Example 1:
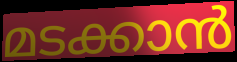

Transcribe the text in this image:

മടക്കാൻ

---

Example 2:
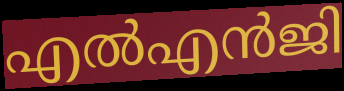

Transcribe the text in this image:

എൽഎൻജി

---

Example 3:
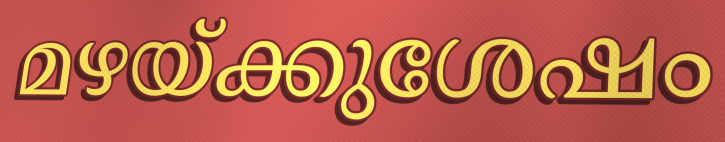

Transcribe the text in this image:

മഴയ്ക്കുശേഷം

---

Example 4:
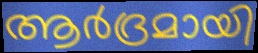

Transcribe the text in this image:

ആർദ്രമായി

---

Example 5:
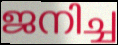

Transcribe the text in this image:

ജനിച്ച